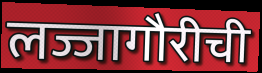
लज्जागौरीची